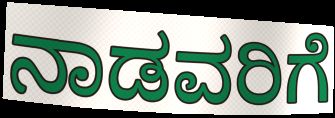
ನಾಡವರಿಗೆ